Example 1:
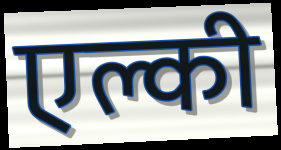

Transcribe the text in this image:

एल्की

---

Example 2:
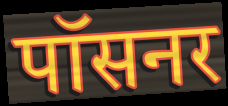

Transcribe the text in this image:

पॉसनर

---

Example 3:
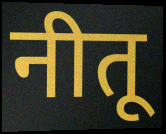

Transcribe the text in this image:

नीतू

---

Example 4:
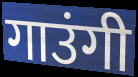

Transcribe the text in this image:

गाउंगी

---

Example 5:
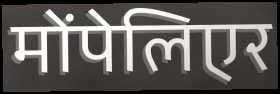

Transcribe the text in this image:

मोंपेलिएर